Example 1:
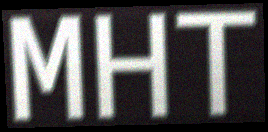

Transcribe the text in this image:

MHT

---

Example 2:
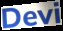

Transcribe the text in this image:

Devi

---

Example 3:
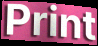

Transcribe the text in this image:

Print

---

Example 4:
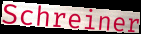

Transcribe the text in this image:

Schreiner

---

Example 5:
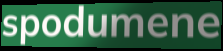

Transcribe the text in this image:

spodumene